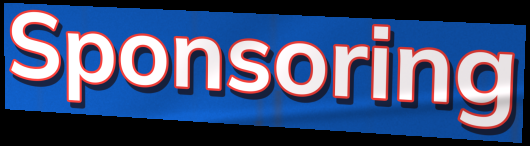
Sponsoring